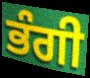
ਭੰਗੀ